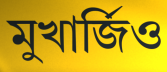
মুখার্জিও